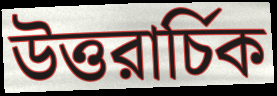
উত্তরার্চিক